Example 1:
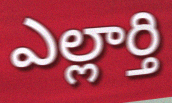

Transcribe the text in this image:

ఎల్లార్తి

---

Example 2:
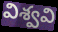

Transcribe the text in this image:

విశ్వవి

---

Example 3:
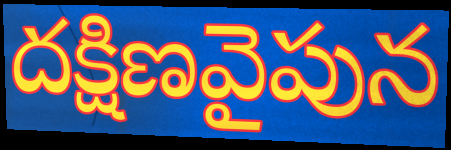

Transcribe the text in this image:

దక్షిణవైపున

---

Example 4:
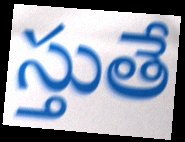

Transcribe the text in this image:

స్తుతే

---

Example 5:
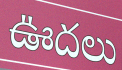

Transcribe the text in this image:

ఊదలు